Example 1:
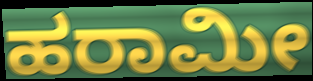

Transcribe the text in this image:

ಹರಾಮೀ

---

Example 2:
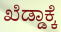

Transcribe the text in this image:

ಖೆಡ್ಡಾಕ್ಕೆ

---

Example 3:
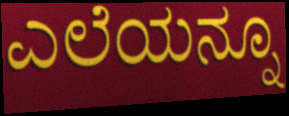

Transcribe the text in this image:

ಎಲೆಯನ್ನೂ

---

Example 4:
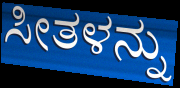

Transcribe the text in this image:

ಸೀತಳನ್ನು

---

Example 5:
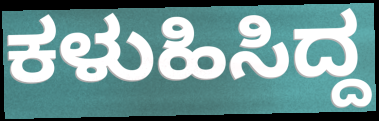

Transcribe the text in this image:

ಕಳುಹಿಸಿದ್ದ